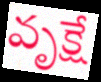
వృక్షే